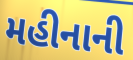
મહીનાની